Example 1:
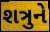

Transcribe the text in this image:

શત્રુને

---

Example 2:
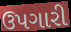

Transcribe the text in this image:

ઉપગારી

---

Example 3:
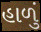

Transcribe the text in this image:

હાળું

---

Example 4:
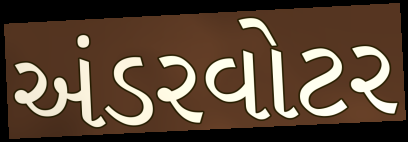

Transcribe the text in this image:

અંડરવોટર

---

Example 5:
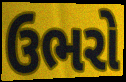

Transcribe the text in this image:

ઉભરો